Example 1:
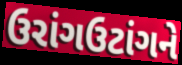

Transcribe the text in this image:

ઉરાંગઉટાંગને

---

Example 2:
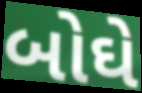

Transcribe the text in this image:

બોઘે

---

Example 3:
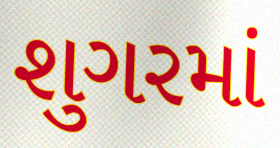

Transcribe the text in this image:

શુગરમાં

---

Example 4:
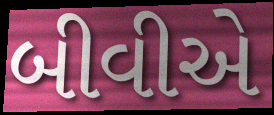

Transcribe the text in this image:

બીવીએ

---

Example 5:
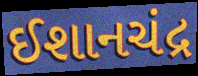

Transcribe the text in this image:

ઈશાનચંદ્ર